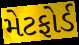
મેટફોર્ડ